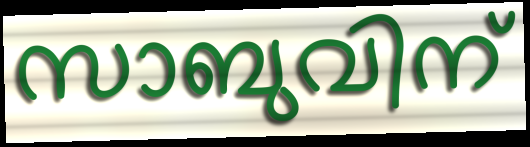
സാബുവിന്